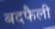
बदफैली